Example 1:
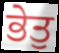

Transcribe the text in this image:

ਭੇਤੁ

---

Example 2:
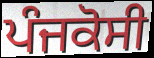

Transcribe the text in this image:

ਪੰਜਕੋਸੀ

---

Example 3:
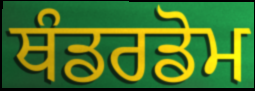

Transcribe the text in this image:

ਥੰਡਰਡੋਮ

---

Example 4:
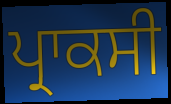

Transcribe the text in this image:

ਪ੍ਰਾਕਸੀ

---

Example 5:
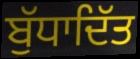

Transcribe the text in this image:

ਬੁੱਧਾਦਿੱਤ